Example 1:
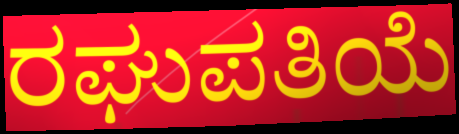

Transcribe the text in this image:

ರಘುಪತಿಯೆ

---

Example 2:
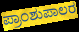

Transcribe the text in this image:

ಪ್ರಾಂಶುಪಾಲರ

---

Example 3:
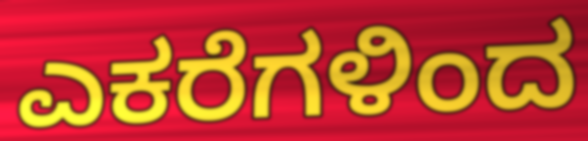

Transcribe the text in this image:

ಎಕರೆಗಳಿಂದ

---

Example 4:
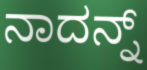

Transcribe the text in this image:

ನಾದನ್ನ್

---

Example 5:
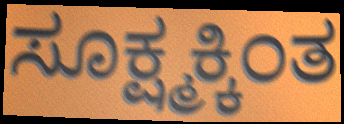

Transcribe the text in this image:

ಸೂಕ್ಷ್ಮಕ್ಕಿಂತ